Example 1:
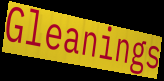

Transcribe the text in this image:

Gleanings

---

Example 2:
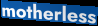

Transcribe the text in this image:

motherless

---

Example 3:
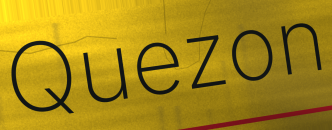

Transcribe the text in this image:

Quezon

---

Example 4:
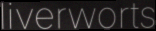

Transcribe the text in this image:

liverworts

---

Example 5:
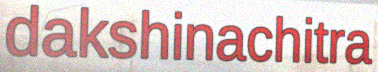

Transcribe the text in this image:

dakshinachitra